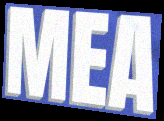
MEA